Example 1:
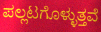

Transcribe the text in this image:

ಪಲ್ಲಟಗೊಳ್ಳುತ್ತವೆ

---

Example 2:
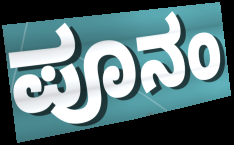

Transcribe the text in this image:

ಪೂನಂ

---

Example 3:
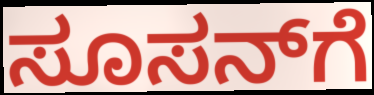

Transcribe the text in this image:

ಸೂಸನ್‌ಗೆ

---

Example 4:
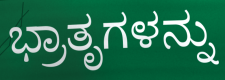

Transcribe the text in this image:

ಭ್ರಾತೃಗಳನ್ನು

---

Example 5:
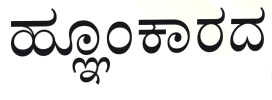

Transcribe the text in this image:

ಹ್ಞೂಂಕಾರದ